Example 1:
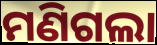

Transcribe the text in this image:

ମଣିଗଲା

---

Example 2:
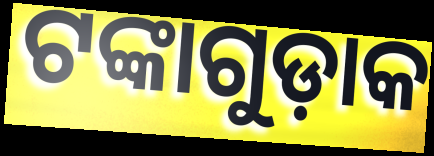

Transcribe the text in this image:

ଟଙ୍କାଗୁଡ଼ାକ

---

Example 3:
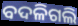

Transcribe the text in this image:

ବଦଳିଗଲି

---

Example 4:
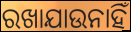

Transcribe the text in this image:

ରଖାଯାଉନାହିଁ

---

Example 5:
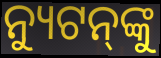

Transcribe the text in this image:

ନ୍ୟୁଟନ୍‌ଙ୍କୁ